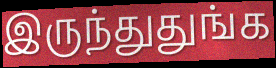
இருந்துதுங்க